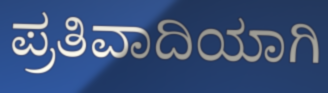
ಪ್ರತಿವಾದಿಯಾಗಿ